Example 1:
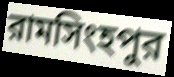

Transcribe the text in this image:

রামসিংহপুর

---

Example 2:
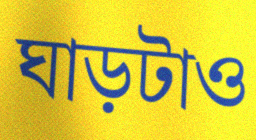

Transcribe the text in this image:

ঘাড়টাও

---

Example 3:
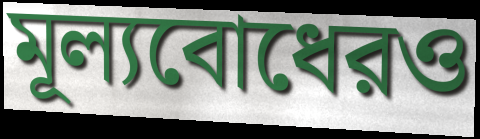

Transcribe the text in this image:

মূল্যবোধেরও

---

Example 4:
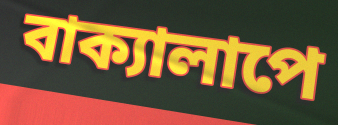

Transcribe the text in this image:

বাক্যালাপে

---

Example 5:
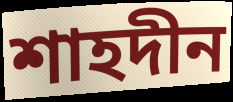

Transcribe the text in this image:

শাহদীন